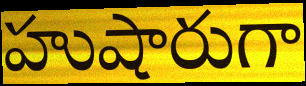
హుషారుగా